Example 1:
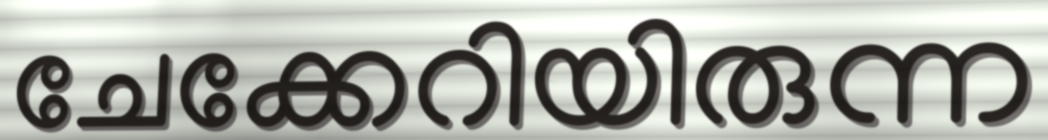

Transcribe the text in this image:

ചേക്കേറിയിരുന്ന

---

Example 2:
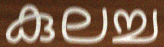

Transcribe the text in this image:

കുലച്ച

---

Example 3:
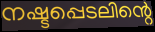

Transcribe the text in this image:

നഷ്ടപ്പെടലിന്റെ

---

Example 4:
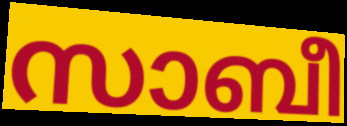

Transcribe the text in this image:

സാബീ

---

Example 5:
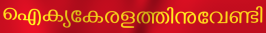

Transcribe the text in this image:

ഐക്യകേരളത്തിനുവേണ്ടി